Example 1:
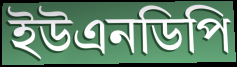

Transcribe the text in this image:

ইউএনডিপি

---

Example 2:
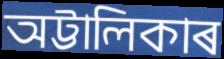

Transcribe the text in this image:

অট্টালিকাৰ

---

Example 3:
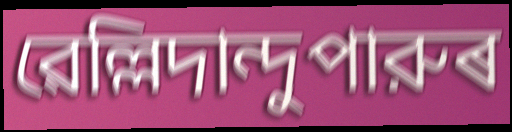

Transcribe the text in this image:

ৱেল্লিদান্দুপাৰুৰ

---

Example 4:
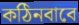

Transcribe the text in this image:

কঠিনবাবে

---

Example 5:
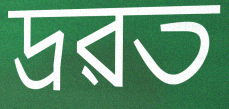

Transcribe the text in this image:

দ্ৰৱত